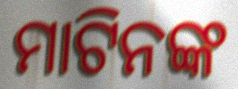
ମାଟିନଙ୍କ